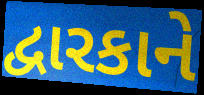
દ્વારકાને